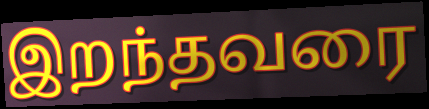
இறந்தவரை